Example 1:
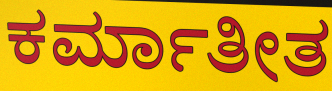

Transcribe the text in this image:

ಕರ್ಮಾತೀತ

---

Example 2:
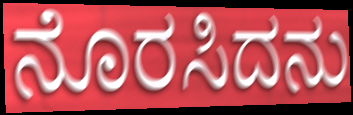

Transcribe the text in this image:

ನೊರಸಿದನು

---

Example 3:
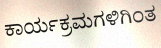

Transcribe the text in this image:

ಕಾರ್ಯಕ್ರಮಗಳಿಗಿಂತ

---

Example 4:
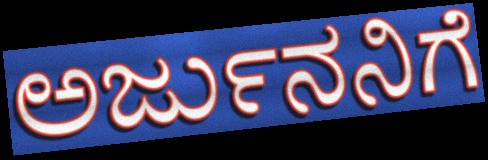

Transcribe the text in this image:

ಅರ್ಜುನನಿಗೆ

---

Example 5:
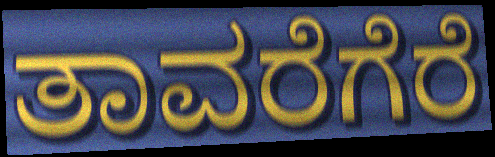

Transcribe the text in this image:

ತಾವರೆಗೆರೆ